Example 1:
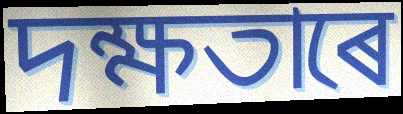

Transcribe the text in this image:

দক্ষতাৰে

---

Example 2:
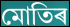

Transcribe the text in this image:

মোতিৰ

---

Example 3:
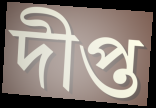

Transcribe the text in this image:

দীপ্ত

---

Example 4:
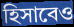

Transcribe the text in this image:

হিসাবেও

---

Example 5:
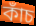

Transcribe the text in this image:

কাঁচ